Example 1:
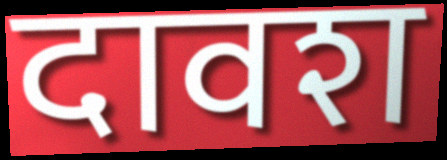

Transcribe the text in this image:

दावश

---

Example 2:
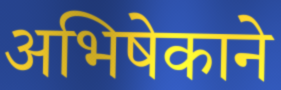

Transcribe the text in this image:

अभिषेकाने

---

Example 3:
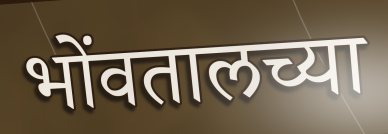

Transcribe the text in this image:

भोंवतालच्या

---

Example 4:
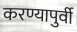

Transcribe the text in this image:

करण्यापुर्वी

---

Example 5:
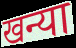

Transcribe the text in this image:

खन्या